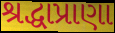
શ્રદ્ધાપ્રાણા